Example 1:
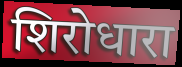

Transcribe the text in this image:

शिरोधारा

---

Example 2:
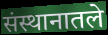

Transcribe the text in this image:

संस्थानातले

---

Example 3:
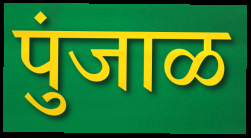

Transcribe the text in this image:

पुंजाळ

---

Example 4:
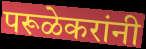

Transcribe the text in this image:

परूळेकरांनी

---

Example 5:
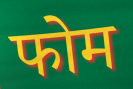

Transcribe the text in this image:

फोम